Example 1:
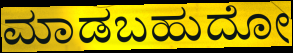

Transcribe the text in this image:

ಮಾಡಬಹುದೋ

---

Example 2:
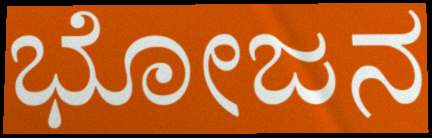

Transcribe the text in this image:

ಭೋಜನ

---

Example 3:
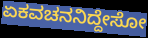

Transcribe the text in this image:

ಏಕವಚನನಿದ್ದೇಸೋ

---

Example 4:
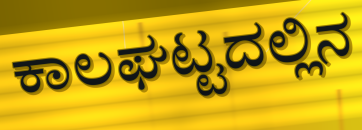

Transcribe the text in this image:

ಕಾಲಘಟ್ಟದಲ್ಲಿನ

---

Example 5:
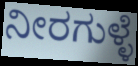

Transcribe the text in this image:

ನೀರಗುಳ್ಳೆ